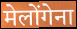
मेलोंगेना